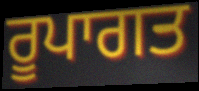
ਰੂਪਾਗਤ